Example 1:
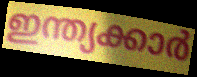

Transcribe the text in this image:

ഇന്ത്യക്കാർ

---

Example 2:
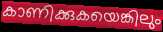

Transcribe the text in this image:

കാണിക്കുകയെങ്കിലും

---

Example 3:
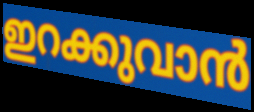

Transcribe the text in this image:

ഇറക്കുവാൻ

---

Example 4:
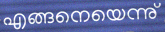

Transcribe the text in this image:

എങ്ങനെയെന്നു്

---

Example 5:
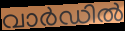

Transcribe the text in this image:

വാർഡിൽ